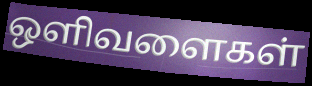
ஒளிவளைகள்